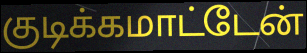
குடிக்கமாட்டேன்